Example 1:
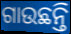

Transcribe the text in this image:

ଗାଉଛନ୍ତି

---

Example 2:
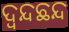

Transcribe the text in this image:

ଦ୍ୱନ୍ଦଛନ୍ଦ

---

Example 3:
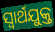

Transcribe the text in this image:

ସ୍ୱାର୍ଥଯୁକ୍ତ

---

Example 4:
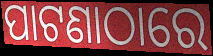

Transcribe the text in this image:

ପାଟଣାଠାରେ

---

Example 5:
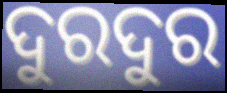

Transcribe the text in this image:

ଦୁରଦୁର